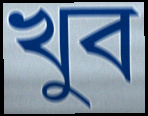
খুব